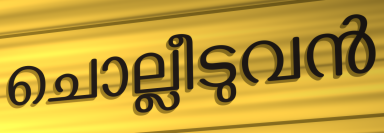
ചൊല്ലീടുവൻ